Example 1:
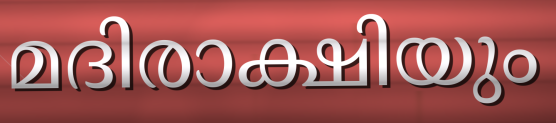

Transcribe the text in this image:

മദിരാക്ഷിയും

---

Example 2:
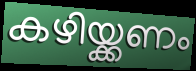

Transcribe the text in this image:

കഴിയ്ക്കണം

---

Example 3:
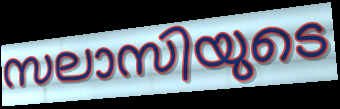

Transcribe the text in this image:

സലാസിയുടെ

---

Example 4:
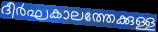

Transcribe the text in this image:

ദീർഘകാലത്തേക്കുള്ള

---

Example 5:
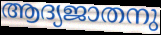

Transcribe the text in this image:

ആദ്യജാതനു